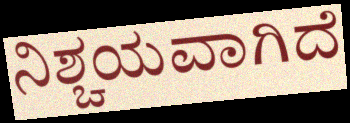
ನಿಶ್ಚಯವಾಗಿದೆ